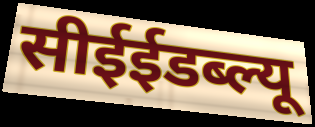
सीईईडब्ल्यू